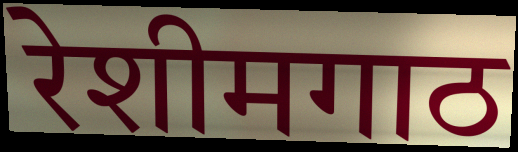
रेशीमगाठ